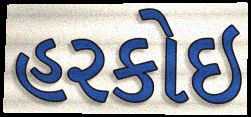
હરકોઇ